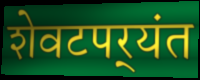
शेवटपर्यंत